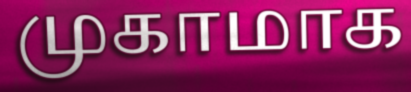
முகாமாக